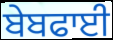
ਬੇਬਫਾਈ